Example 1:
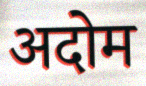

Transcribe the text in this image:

अदोम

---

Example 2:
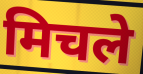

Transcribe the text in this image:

मिचले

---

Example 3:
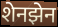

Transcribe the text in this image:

शेनझेन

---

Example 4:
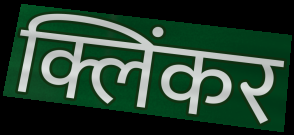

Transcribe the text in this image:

क्लिंकर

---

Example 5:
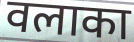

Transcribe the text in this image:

वलाका